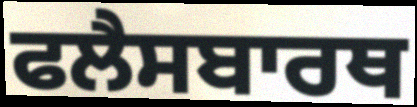
ਫਲੈਸਬਾਰਥ